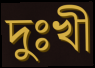
দুঃখী